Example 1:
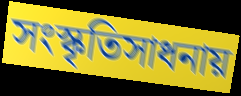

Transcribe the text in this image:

সংস্কৃতিসাধনায়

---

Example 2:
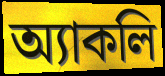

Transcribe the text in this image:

অ্যাকলি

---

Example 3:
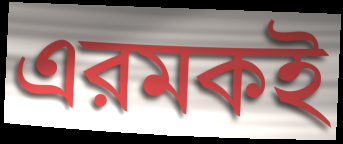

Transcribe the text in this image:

এরমকই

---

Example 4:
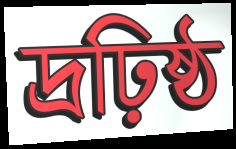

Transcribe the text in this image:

দ্রঢ়িষ্ঠ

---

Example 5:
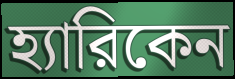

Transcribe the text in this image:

হ্যারিকেন